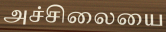
அச்சிலையை